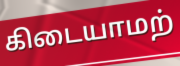
கிடையாமற்